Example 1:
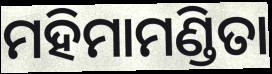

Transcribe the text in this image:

ମହିମାମଣ୍ଡିତା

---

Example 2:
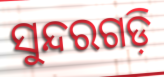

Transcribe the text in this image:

ସୁନ୍ଦରଗଡ଼ି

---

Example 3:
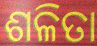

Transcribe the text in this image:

ଶଳିତା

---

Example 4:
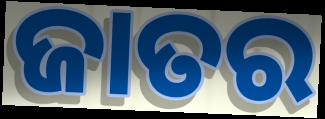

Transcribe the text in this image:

ଜାତର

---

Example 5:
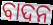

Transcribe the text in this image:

ବାଦନ